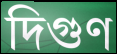
দিগুণ